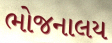
ભોજનાલય